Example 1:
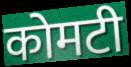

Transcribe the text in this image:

कोमटी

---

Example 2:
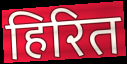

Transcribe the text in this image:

हिरित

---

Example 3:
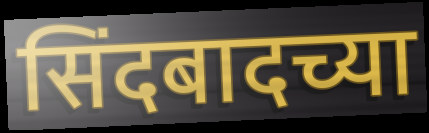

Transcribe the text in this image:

सिंदबादच्या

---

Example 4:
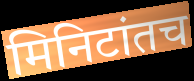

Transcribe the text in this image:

मिनिटांतच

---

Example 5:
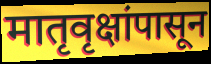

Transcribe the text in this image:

मातृवृक्षांपासून